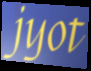
jyot